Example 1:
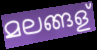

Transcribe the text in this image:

മലങ്ങള്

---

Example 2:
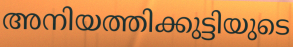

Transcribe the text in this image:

അനിയത്തിക്കുട്ടിയുടെ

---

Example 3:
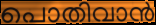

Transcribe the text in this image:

പൊതിവാൻ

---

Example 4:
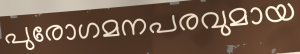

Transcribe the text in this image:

പുരോഗമനപരവുമായ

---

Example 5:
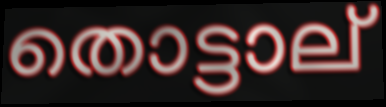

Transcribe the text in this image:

തൊട്ടാല്